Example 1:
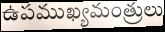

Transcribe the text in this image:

ఉపముఖ్యమంత్రులు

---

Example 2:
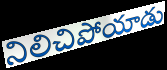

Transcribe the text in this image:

నిలిచిపోయాడు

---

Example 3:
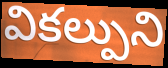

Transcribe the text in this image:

వికల్పుని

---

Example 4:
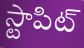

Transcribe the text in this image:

స్టాపిట్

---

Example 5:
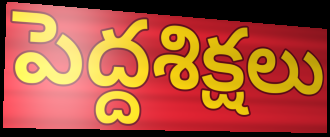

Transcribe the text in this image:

పెద్దశిక్షలు